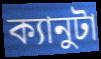
ক্যানুটা